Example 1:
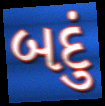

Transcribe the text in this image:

બદું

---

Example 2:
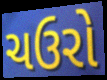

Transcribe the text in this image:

ચઉરો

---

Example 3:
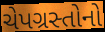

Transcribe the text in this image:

ચેપગ્રસ્તોનો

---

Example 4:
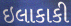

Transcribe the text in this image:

ઇલાકાકી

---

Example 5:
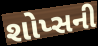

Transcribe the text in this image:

શોપ્સની